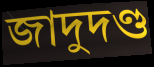
জাদুদণ্ড